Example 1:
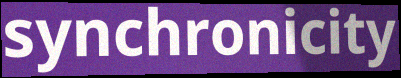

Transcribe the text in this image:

synchronicity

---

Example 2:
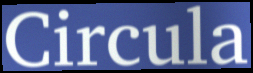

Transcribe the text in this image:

Circula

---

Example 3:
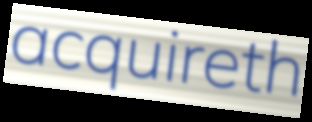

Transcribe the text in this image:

acquireth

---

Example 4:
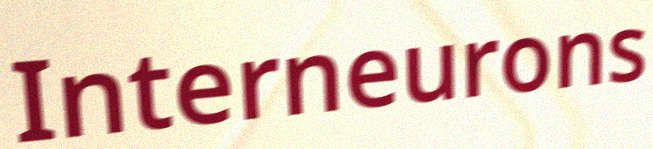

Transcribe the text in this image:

Interneurons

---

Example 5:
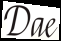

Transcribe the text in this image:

Dae